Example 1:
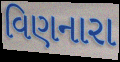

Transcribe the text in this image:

વિણનારા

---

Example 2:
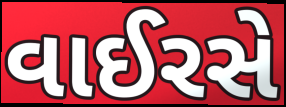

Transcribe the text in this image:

વાઈરસે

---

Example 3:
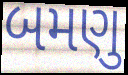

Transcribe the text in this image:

બમણુ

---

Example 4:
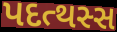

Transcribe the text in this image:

પદત્થસ્સ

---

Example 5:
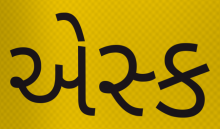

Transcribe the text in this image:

એસ્ક